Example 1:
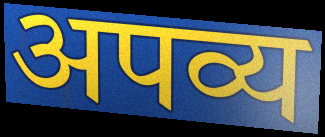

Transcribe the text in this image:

अपव्य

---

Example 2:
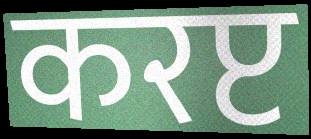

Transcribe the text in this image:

करप्ट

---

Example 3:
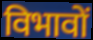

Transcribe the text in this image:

विभावों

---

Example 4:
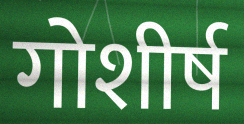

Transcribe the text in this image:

गोशीर्ष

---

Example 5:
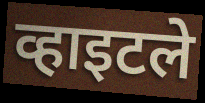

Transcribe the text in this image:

व्हाइटले